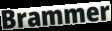
Brammer